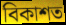
বিকাশত